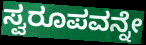
ಸ್ವರೂಪವನ್ನೇ